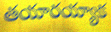
తయారయ్యాక